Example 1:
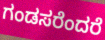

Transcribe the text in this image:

ಗಂಡಸರೆಂದರೆ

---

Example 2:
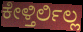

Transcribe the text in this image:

ಕೇಳ್ತಿರ್ಲಿಲ್ಲ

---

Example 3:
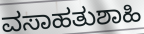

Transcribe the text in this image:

ವಸಾಹತುಶಾಹಿ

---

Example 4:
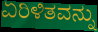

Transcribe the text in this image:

ಏರಿಳಿತವನ್ನು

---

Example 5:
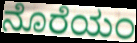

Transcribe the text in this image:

ನೊರೆಯಂ